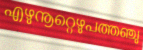
എഴുനൂറ്റെഴുപത്തഞ്ചു